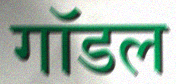
गॉडल